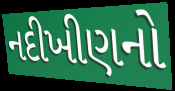
નદીખીણનો